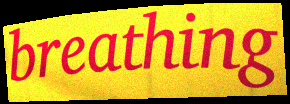
breathing